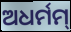
ଅଧର୍ମମ୍